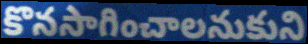
కొనసాగించాలనుకుని